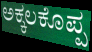
ಅಕ್ಕಲಕೊಪ್ಪ